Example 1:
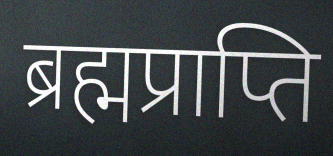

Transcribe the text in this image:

ब्रह्मप्राप्ति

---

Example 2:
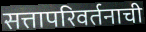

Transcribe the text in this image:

सत्तापरिवर्तनाची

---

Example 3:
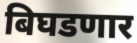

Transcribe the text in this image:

बिघडणार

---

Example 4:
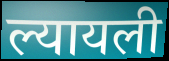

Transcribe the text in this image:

ल्यायली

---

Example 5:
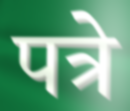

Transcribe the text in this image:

पत्रे